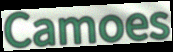
Camoes